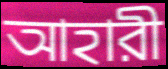
আহারী